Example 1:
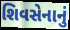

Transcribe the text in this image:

શિવસેનાનું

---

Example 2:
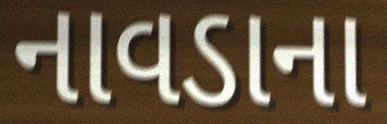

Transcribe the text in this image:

નાવડાના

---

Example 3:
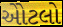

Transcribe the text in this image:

એોટલો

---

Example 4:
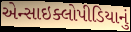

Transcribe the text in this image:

એન્સાઇક્લોપીડિયાનું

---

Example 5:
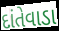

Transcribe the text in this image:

દાંતેવાડા